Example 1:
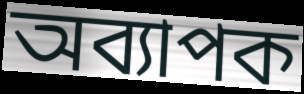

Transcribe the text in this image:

অব্যাপক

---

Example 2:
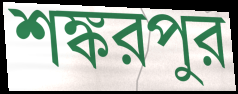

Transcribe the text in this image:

শঙ্করপুর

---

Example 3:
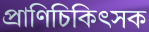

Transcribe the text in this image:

প্রাণিচিকিৎসক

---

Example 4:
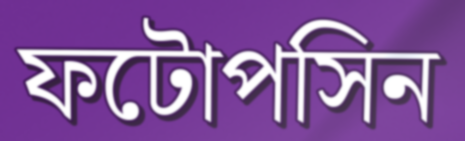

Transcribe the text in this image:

ফটোপসিন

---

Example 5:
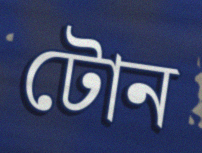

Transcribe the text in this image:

টোন